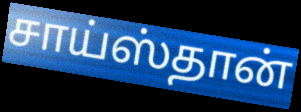
சாய்ஸ்தான்